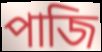
পাজি